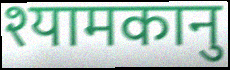
श्यामकानु